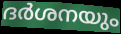
ദർശനയും